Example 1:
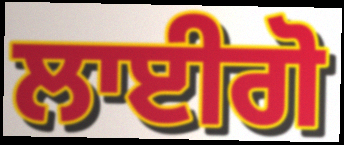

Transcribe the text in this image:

ਲਾਈਗੋ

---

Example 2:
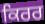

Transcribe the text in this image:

ਕਿਰਰ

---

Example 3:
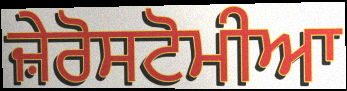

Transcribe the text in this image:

ਜ਼ੇਰੋਸਟੋਮੀਆ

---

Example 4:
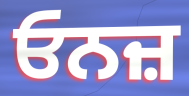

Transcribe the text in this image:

ਓਨਜ਼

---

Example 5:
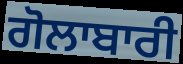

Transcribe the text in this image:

ਗੋਲਾਬਾਰੀ